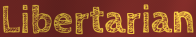
Libertarian